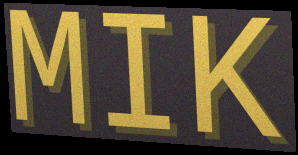
MIK